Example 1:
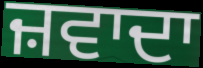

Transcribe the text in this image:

ਜ਼ਵਾਦਾ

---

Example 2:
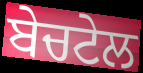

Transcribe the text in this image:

ਬੇਚਟੇਲ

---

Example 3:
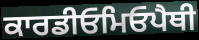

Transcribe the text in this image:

ਕਾਰਡੀਓਮਿਓਪੈਥੀ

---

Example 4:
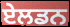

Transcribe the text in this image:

ਏਲਡਨ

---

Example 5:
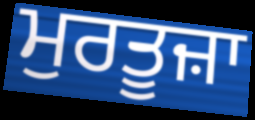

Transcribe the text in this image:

ਮੁਰਤੂਜ਼ਾ